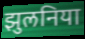
झुलनिया